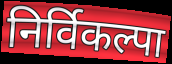
निर्विकल्पा